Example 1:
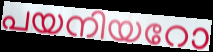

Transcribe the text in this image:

പയനിയറോ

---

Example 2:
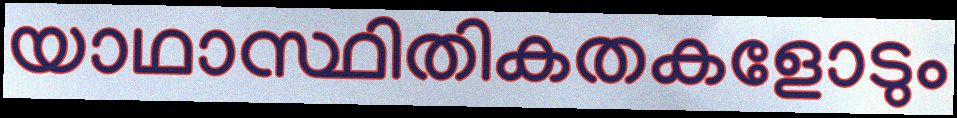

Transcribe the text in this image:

യാഥാസ്ഥിതികതകളോടും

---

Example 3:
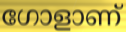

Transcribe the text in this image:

ഗോളാണ്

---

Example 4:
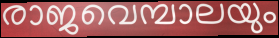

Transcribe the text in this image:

രാജവെമ്പാലയും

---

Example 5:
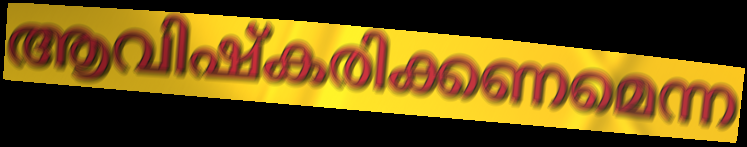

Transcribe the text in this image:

ആവിഷ്കരിക്കണമെന്ന